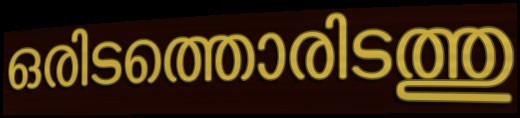
ഒരിടത്തൊരിടത്തു